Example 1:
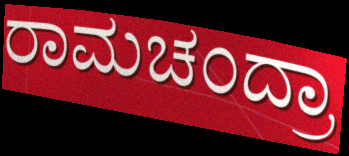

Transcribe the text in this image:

ರಾಮಚಂದ್ರಾ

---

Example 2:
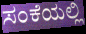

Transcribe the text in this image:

ಸಂಕೆಯಲ್ಲಿ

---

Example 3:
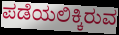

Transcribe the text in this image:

ಪಡೆಯಲಿಕ್ಕಿರುವ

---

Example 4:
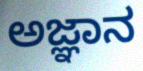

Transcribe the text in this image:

ಅಜ್ಞಾನ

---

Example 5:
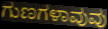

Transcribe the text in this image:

ಗುಣಗಳಾವುವು